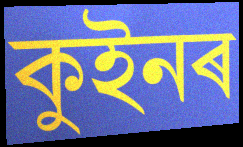
কুইনৰ